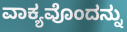
ವಾಕ್ಯವೊಂದನ್ನು